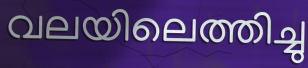
വലയിലെത്തിച്ചു